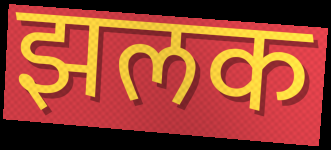
झलक